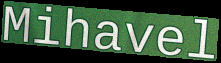
Mihavel